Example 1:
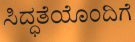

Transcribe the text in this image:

ಸಿದ್ಧತೆಯೊಂದಿಗೆ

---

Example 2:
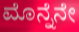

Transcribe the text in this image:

ಮೊನ್ನೆನೇ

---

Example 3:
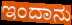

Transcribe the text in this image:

ಇಂದಾನು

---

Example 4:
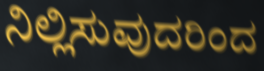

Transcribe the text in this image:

ನಿಲ್ಲಿಸುವುದರಿಂದ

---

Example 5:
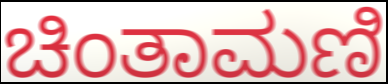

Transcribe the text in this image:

ಚಿಂತಾಮಣಿ